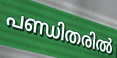
പണ്ഡിതരിൽ